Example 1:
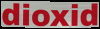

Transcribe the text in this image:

dioxid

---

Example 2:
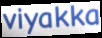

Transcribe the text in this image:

viyakka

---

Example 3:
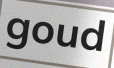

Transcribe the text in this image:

goud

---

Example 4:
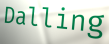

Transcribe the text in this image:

Dalling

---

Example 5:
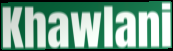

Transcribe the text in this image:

Khawlani